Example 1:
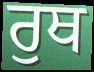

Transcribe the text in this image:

ਰੁਥ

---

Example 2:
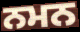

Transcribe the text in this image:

ਨਮਨ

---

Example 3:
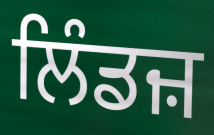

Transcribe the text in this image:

ਲਿੰਡਜ਼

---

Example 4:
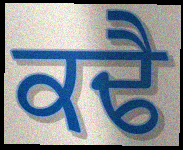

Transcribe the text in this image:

ਕਢੈ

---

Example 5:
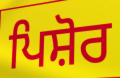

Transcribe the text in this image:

ਪਿਸ਼ੋਰ